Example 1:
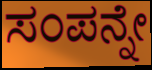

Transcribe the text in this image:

ಸಂಪನ್ನೇ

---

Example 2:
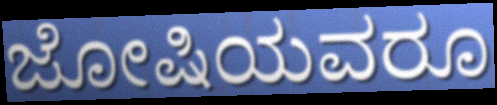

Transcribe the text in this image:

ಜೋಷಿಯವರೂ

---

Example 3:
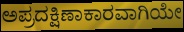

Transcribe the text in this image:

ಅಪ್ರದಕ್ಷಿಣಾಕಾರವಾಗಿಯೇ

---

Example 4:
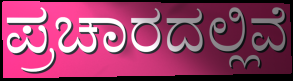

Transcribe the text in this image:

ಪ್ರಚಾರದಲ್ಲಿವೆ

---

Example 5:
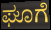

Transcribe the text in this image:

ಘೂಗೆ